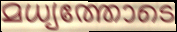
മധ്യത്തോടെ